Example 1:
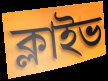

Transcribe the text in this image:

ক্লাইভ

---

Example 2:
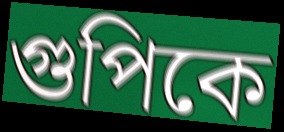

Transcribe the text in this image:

গুপিকে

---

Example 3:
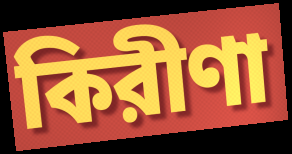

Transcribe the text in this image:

কিরীণা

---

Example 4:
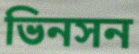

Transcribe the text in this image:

ভিনসন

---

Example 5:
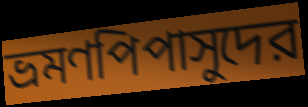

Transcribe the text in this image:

ভ্রমণপিপাসুদের